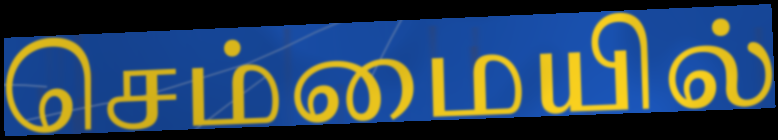
செம்மையில்